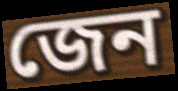
জেন